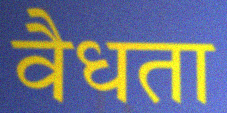
वैधता